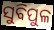
ସୁବିପୁଳ